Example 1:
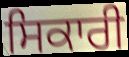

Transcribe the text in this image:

ਸਿਕਾਰੀ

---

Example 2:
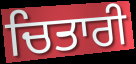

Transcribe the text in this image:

ਚਿਤਾਰੀ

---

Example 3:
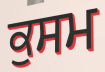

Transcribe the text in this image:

ਕੁਸਮ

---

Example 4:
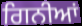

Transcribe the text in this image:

ਗਿਨੀਆਂ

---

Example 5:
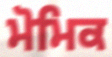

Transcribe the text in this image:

ਮੋਮਿਕ